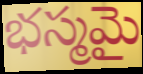
భస్మమై